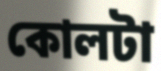
কোলটা